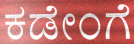
ಕಡೇಂಗೆ